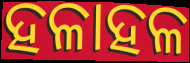
ହଳାହଳ